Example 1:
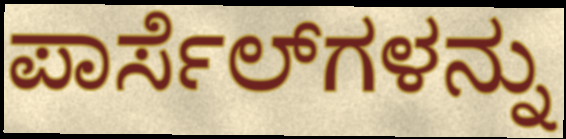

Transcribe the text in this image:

ಪಾರ್ಸೆಲ್‌ಗಳನ್ನು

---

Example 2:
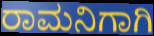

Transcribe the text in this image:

ರಾಮನಿಗಾಗಿ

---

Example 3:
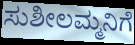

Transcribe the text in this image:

ಸುಶೀಲಮ್ಮನಿಗೆ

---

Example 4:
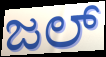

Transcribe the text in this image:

ಜಲ್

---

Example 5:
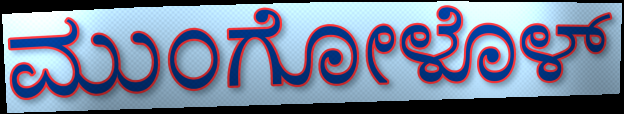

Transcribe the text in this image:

ಮುಂಗೋಳೊಳ್